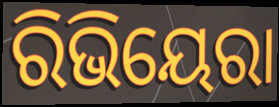
ରିଭିୟେରା